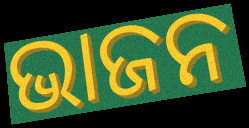
ଭାଜନ